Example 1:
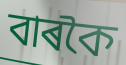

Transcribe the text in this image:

বাৰকৈ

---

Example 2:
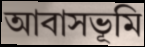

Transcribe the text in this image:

আবাসভূমি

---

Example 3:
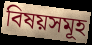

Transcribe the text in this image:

বিষয়সমূহ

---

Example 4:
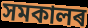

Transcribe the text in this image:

সমকালৰ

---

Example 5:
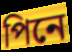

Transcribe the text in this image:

পিনে